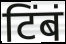
टिंबं